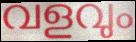
വളവും